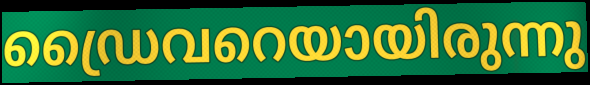
ഡ്രൈവറെയായിരുന്നു